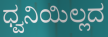
ಧ್ವನಿಯಿಲ್ಲದ